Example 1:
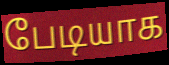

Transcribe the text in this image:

பேடியாக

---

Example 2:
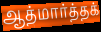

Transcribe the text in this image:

ஆத்மார்த்தக்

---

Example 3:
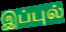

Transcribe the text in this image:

இப்புல்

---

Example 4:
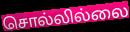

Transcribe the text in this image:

சொல்லில்லை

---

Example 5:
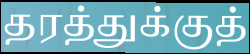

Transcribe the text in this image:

தரத்துக்குத்